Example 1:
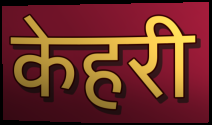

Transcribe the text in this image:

केहरी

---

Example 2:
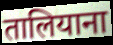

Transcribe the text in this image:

तालियाना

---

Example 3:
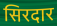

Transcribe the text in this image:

सिरदार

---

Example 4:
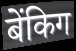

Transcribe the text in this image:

बेंकिग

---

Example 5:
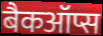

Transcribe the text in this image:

बैकऑप्स